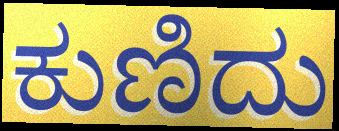
ಕುಣಿದು